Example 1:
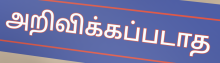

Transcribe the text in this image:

அறிவிக்கப்படாத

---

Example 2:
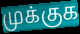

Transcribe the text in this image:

முக்குக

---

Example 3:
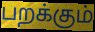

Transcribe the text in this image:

பறக்கும்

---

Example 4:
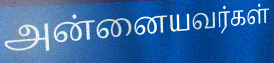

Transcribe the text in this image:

அன்னையவர்கள்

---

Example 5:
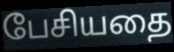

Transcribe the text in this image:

பேசியதை